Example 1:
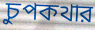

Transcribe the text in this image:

চুপকথার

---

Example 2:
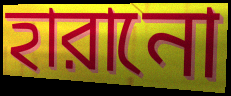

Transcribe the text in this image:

হারানো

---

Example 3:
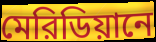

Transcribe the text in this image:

মেরিডিয়ানে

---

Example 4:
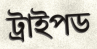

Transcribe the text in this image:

ট্রাইপড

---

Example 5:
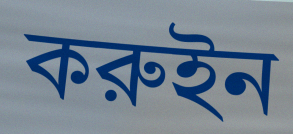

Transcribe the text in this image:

করুইন